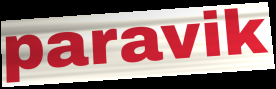
paravik